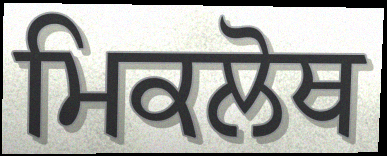
ਮਿਕਲੋਥ